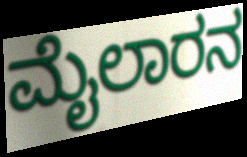
ಮೈಲಾರನ